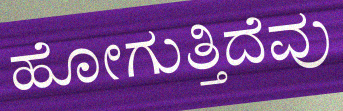
ಹೋಗುತ್ತಿದೆವು